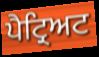
ਪੈਟ੍ਰਿਅਟ